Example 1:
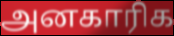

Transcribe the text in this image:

அனகாரிக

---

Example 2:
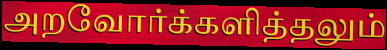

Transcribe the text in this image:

அறவோர்க்களித்தலும்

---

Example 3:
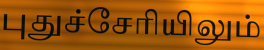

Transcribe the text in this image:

புதுச்சேரியிலும்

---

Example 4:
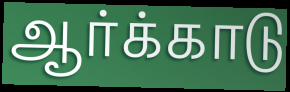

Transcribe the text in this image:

ஆர்க்காடு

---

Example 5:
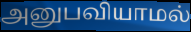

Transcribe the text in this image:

அனுபவியாமல்